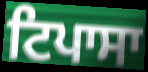
ਟਿਪਾਸਾ